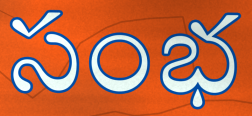
సంభ